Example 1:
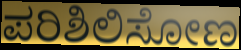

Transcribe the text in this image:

ಪರಿಶಿಲಿಸೋಣ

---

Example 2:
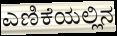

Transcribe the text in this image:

ಎಣಿಕೆಯಲ್ಲಿನ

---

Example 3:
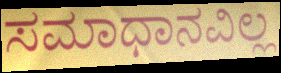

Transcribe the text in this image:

ಸಮಾಧಾನವಿಲ್ಲ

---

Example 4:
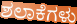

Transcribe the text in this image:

ಶಲಾಕೆಗಳು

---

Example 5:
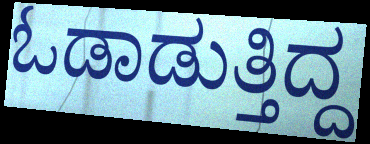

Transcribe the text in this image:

ಓಡಾಡುತ್ತಿದ್ದ